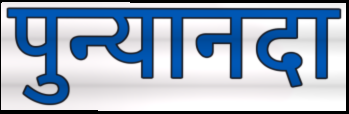
पुन्यानदा